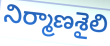
నిర్మాణశైలి